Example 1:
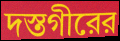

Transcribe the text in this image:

দস্তগীরের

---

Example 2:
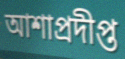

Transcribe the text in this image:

আশাপ্রদীপ্ত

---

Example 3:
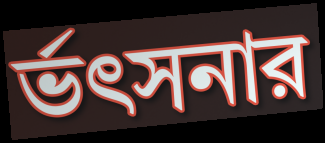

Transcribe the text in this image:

র্ভৎসনার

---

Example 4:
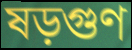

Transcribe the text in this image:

ষড়গুণ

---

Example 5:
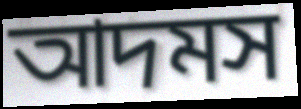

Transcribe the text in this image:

আদমস